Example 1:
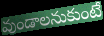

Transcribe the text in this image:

వుండాలనుకుంటే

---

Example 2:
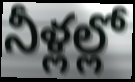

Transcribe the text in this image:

నీళ్లల్లో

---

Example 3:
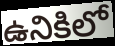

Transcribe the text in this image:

ఉనికిలో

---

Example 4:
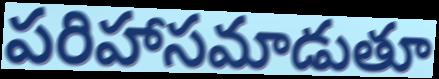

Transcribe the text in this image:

పరిహాసమాడుతూ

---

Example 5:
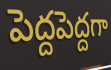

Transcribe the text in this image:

పెద్దపెద్దగా